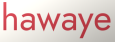
hawaye